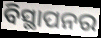
ବିସ୍ଥାପନର